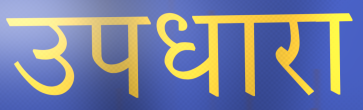
उपधारा